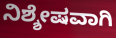
ನಿಶ್ಶೇಷವಾಗಿ